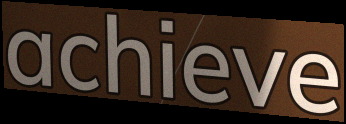
achieve